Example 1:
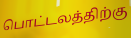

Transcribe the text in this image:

பொட்டலத்திற்கு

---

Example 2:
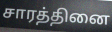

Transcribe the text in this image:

சாரத்தினை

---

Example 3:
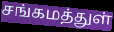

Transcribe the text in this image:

சங்கமத்துள்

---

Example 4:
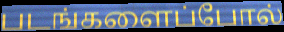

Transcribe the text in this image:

படங்களைப்போல்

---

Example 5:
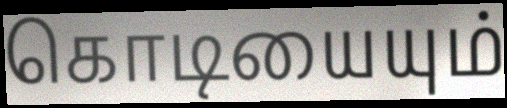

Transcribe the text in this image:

கொடியையும்